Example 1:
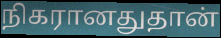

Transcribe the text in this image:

நிகரானதுதான்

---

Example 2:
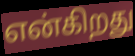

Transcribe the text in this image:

என்கிறது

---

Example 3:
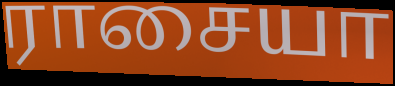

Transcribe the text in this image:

ராசையா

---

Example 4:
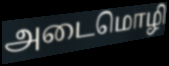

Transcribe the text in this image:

அடைமொழி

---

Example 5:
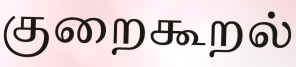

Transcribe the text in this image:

குறைகூறல்